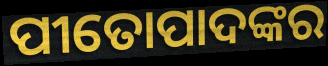
ପୀତୋପାଦଙ୍କର